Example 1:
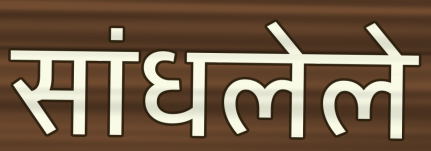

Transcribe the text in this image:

सांधलेले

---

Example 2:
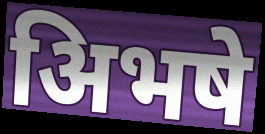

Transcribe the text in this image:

अिभषे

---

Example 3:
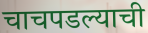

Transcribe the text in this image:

चाचपडल्याची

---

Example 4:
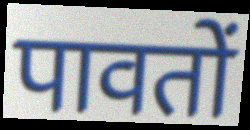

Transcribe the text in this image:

पावतों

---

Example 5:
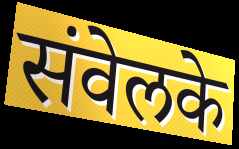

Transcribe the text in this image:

संवेलके